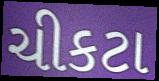
ચીકટા